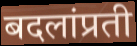
बदलांप्रती